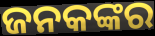
ଜନକଙ୍କର